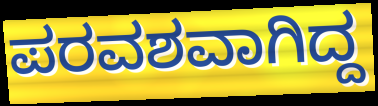
ಪರವಶವಾಗಿದ್ದ